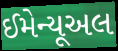
ઈમેન્યૂઅલ